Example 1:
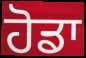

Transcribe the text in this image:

ਹੋਡਾ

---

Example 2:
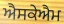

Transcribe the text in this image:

ਐਸਕੇਐਮ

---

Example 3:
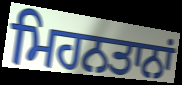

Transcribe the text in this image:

ਮਿਹਨਤਾਨਾਂ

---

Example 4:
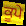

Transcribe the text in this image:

ਕੂਪੇ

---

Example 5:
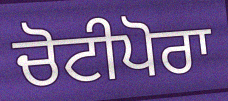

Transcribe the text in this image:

ਚੋਟੀਪੋਰਾ